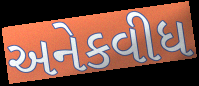
અનેકવીધ